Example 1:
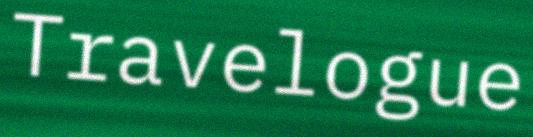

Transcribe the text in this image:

Travelogue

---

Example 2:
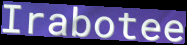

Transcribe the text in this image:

Irabotee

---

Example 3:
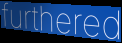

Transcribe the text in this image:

furthered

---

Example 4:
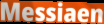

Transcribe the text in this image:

Messiaen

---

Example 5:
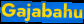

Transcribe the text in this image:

Gajabahu